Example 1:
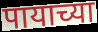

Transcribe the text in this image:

पायाच्या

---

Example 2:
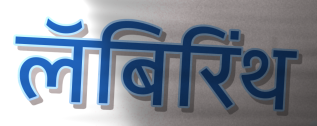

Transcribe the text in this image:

लॅबिरिंथ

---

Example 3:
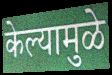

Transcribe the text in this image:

केल्यामुळे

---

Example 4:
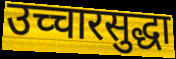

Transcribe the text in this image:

उच्चारसुद्धा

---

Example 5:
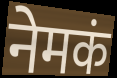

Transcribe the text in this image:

नेमकं